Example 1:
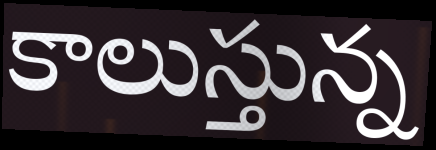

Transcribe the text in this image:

కాలుస్తున్న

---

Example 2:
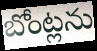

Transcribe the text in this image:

బోంట్లను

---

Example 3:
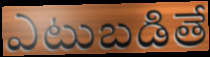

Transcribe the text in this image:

ఎటుబడితే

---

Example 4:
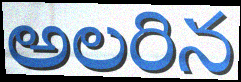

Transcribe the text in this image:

అలరిన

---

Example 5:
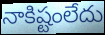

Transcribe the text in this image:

నాకిష్టంలేదు